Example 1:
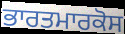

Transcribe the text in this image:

ਭਾਰਤਮਾਰਕੋਸ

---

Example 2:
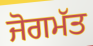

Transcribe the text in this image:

ਜੋਗਮੱਤ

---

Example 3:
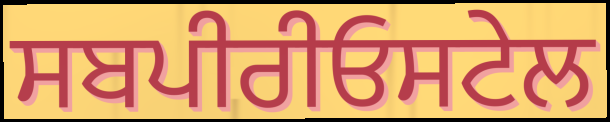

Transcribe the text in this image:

ਸਬਪੀਰੀਓਸਟੇਲ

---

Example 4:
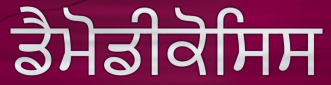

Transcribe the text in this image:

ਡੈਮੋਡੀਕੋਸਿਸ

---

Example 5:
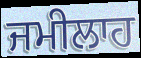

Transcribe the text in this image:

ਜਮੀਲਾਹ